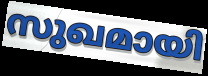
സുഖമായി